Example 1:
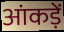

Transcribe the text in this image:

आंकड़ें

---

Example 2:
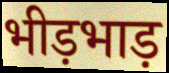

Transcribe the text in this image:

भीड़भाड़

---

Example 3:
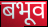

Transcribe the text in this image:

बभूव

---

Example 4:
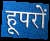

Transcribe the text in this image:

हूपरों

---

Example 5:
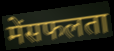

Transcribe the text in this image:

मेंसफलता